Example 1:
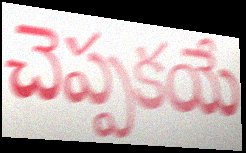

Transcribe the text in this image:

చెప్పకయే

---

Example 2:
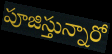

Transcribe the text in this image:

పూజిస్తున్నారో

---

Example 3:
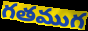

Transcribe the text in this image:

గతముగ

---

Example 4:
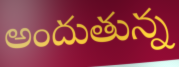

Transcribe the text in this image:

అందుతున్న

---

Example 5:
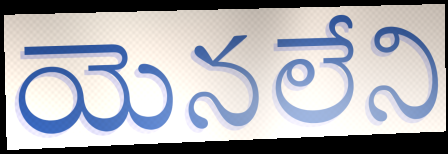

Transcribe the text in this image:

యెనలేని